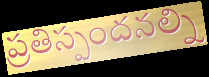
ప్రతిస్పందనల్ని